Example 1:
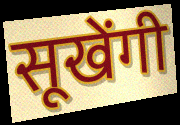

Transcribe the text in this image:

सूखेंगी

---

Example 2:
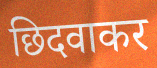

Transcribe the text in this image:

छिदवाकर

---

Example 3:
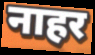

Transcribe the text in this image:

नाहर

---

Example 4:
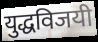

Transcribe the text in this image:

युद्धविजयी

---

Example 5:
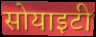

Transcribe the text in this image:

सोयाइटी